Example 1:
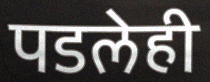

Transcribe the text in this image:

पडलेही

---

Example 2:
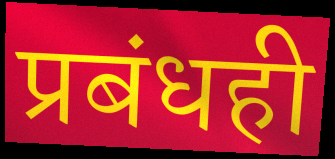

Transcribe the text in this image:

प्रबंधही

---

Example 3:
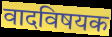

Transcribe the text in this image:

वादविषयक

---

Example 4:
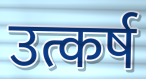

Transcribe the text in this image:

उत्कर्ष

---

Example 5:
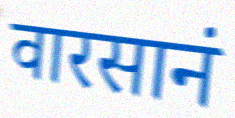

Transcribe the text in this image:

वारसानं